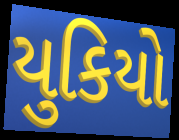
યુકિયો